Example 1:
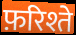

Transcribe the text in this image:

फ़रिश्ते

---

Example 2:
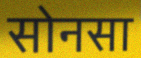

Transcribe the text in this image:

सोनसा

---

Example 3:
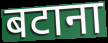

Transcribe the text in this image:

बटाना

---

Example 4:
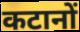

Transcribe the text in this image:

कटानों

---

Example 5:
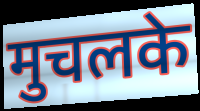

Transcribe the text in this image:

मुचलके